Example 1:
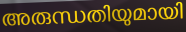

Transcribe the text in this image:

അരുന്ധതിയുമായി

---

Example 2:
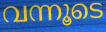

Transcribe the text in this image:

വന്നൂടെ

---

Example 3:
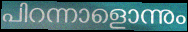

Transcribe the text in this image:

പിറന്നാളൊന്നും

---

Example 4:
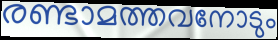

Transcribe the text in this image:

രണ്ടാമത്തവനോടും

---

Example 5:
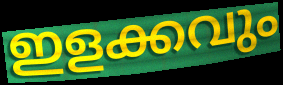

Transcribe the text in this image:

ഇളക്കവും